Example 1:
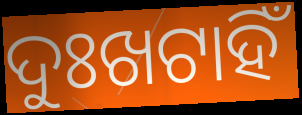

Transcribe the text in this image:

ଦୁଃଖଟାହିଁ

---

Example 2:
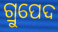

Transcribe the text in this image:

ଗ୍ରୁପେଦ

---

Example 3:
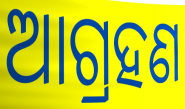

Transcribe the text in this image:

ଆଗ୍ରହଣ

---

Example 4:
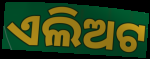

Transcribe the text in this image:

ଏଲିଅଟ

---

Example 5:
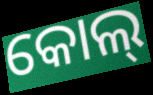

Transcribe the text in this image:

କୋଲ୍